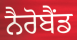
ਨੈਰੋਬੈਂਡ